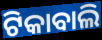
ଟିକାବାଲି